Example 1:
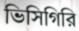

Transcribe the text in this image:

ভিসিগিরি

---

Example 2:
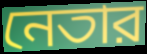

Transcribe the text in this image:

নেতার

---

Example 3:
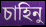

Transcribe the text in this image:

চাহিনু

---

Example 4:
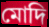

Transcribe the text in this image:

মোদি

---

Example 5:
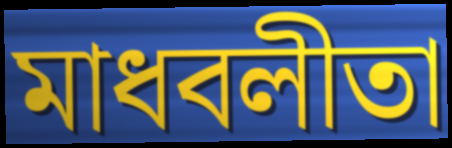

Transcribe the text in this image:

মাধবলীতা